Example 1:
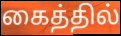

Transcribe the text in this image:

கைத்தில்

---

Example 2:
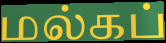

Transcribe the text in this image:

மல்கப்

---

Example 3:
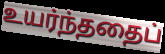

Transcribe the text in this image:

உயர்ந்ததைப்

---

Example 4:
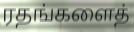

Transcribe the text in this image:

ரதங்களைத்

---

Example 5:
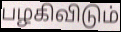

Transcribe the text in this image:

பழகிவிடும்